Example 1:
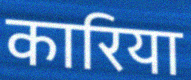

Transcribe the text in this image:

कारिया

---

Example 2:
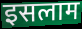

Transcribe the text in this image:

इसलाम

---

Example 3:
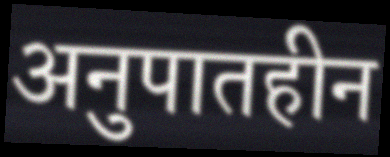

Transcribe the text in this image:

अनुपातहीन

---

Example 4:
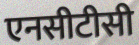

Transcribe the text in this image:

एनसीटीसी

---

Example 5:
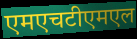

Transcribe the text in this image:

एमएचटीएमएल